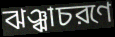
ঝঞ্ঝাচরণে